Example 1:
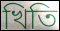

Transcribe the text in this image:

খিতি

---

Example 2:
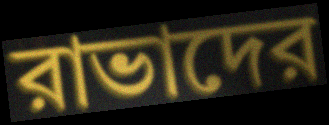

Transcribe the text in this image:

রাভাদের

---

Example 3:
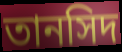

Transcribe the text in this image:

তানসিদ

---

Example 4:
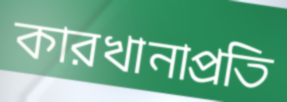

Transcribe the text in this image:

কারখানাপ্রতি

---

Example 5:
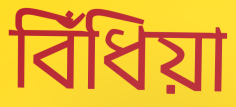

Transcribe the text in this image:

বিঁধিয়া